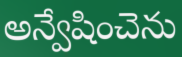
అన్వేషించెను